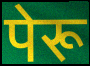
पेरू